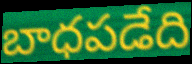
బాధపడేది